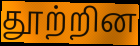
தூற்றின